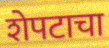
शेपटाचा